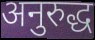
अनुरुद्ध